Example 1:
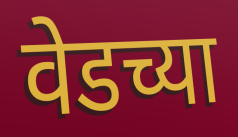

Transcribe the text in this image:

वेडच्या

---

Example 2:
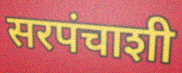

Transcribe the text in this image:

सरपंचाशी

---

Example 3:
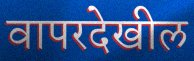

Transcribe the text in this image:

वापरदेखील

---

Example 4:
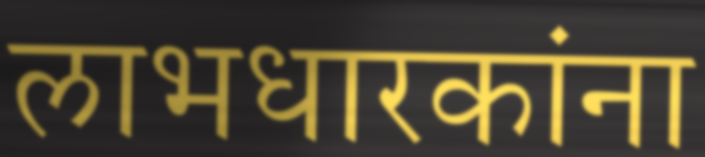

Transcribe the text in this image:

लाभधारकांना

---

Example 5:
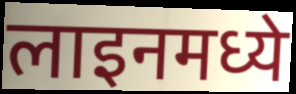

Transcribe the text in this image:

लाइनमध्ये